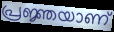
പ്രജ്ഞയാണ്